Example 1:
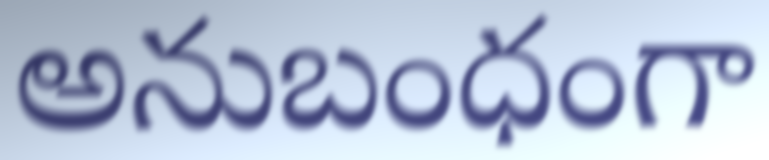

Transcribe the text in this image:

అనుబంధంగా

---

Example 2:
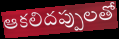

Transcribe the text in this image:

ఆకలిదప్పులతో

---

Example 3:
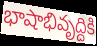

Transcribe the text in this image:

భాషాభివృద్దికి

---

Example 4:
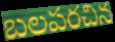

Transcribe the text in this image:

బలపరచిన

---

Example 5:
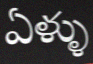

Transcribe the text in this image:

ఏళ్ళు